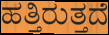
ಹತ್ತಿರುತ್ತದೆ